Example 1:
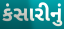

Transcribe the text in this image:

કંસારીનું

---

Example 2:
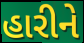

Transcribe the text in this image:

હારીને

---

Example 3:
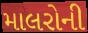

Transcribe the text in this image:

માલરોની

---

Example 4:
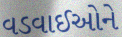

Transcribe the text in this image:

વડવાઈઓને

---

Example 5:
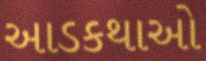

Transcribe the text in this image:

આડકથાઓ